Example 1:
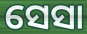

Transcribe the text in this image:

ସେସା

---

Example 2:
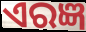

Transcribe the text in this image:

ଏରଜ୍ଞ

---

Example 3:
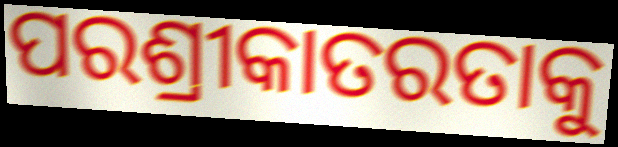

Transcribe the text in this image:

ପରଶ୍ରୀକାତରତାକୁ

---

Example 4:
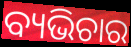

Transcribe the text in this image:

ବ୍ୟଭିଚାର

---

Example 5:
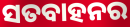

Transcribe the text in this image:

ସତବାହନର